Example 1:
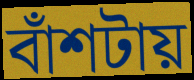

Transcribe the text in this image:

বাঁশটায়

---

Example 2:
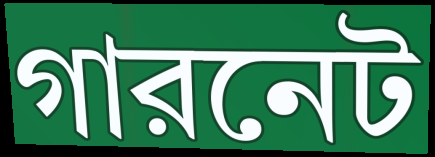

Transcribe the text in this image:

গারনেট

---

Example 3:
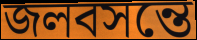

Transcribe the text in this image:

জলবসন্তে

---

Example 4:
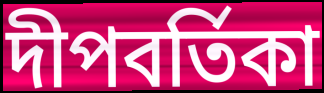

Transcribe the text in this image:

দীপবর্তিকা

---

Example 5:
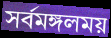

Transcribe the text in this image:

সর্বমঙ্গলময়